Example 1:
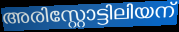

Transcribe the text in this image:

അരിസ്റ്റോട്ടിലിയന്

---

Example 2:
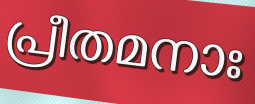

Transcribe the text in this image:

പ്രീതമനാഃ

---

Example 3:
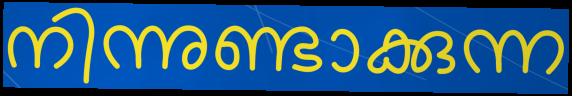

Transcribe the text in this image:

നിന്നുണ്ടാക്കുന്ന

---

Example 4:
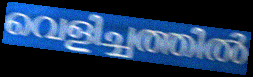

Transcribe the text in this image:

വെളിച്ചത്തിൽ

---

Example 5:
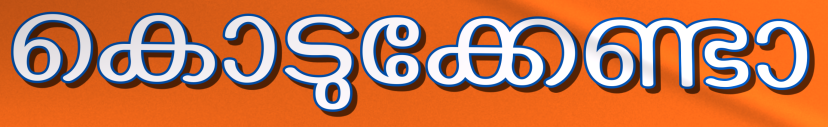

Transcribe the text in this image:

കൊടുക്കേണ്ടാ